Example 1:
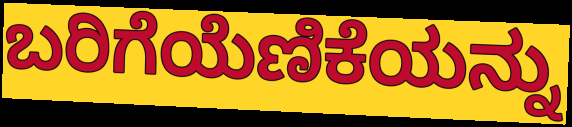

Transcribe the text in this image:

ಬರಿಗೆಯೆಣಿಕೆಯನ್ನು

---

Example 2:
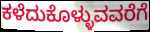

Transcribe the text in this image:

ಕಳೆದುಕೊಳ್ಳುವವರೆಗೆ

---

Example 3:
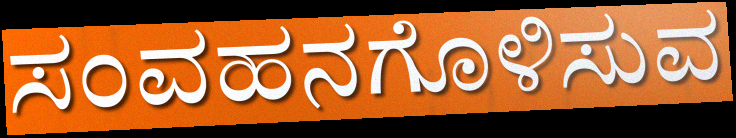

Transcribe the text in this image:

ಸಂವಹನಗೊಳಿಸುವ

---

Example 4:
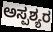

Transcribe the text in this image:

ಅಸ್ಪಶ್ಯರ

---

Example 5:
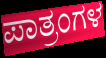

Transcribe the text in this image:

ಪಾತ್ರಂಗಳ